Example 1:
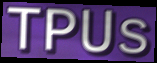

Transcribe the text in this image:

TPUs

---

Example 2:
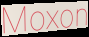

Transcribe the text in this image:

Moxon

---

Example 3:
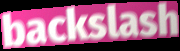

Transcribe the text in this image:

backslash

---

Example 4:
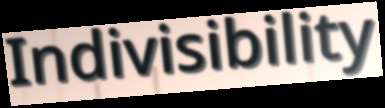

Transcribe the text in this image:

Indivisibility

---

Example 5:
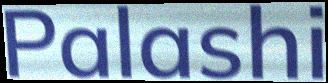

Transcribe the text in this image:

Palashi